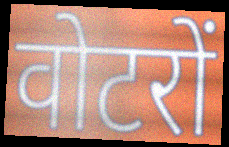
वोटरों